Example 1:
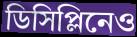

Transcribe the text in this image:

ডিসিপ্লিনেও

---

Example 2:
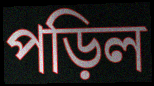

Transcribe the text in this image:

পড়িল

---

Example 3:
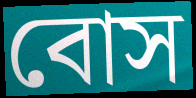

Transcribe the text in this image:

বোস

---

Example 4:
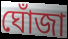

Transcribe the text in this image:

ঘোঁজা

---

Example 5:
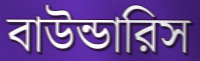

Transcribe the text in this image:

বাউন্ডারিস